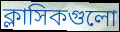
ক্লাসিকগুলো